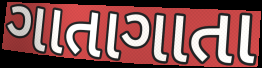
ગાતાગાતા